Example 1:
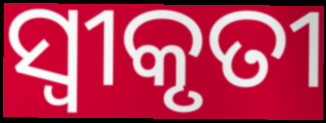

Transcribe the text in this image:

ସ୍ୱୀକୃତୀ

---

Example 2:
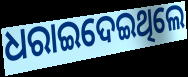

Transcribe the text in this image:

ଧରାଇଦେଇଥିଲେ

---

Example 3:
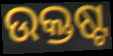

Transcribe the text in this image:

ଉକ୍ତଷ୍ଟ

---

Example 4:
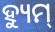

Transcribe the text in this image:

ହ୍ୟୁମ୍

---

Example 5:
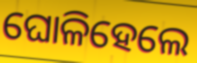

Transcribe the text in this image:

ଘୋଳିହେଲେ